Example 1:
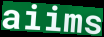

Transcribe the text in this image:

aiims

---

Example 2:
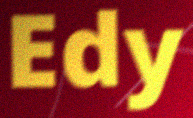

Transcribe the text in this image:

Edy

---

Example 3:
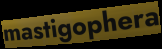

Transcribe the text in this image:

mastigophera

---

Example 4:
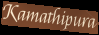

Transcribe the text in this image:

Kamathipura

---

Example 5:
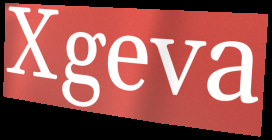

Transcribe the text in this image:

Xgeva